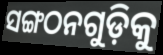
ସଙ୍ଗଠନଗୁଡ଼ିକୁ